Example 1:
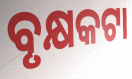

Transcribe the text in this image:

ବୃକ୍ଷକଟା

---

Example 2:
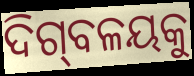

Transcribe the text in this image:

ଦିଗ୍‌ବଳୟକୁ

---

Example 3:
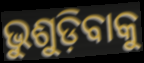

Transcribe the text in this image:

ଭୁଶୁଡ଼ିବାକୁ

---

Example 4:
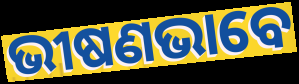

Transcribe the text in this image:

ଭୀଷଣଭାବେ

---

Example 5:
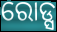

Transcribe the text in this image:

ରୋଡ୍ସ